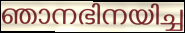
ഞാനഭിനയിച്ച